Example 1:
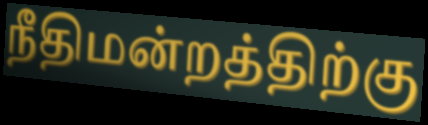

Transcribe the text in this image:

நீதிமன்றத்திற்கு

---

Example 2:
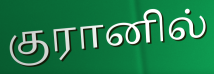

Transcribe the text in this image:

குரானில்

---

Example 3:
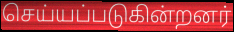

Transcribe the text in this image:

செய்யப்படுகின்றனர்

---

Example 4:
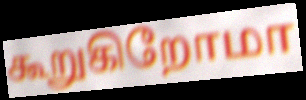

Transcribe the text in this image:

கூறுகிறோமா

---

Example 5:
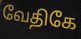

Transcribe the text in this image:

வேதிகே